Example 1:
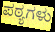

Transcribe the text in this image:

ಪಠ್ಯಗಳು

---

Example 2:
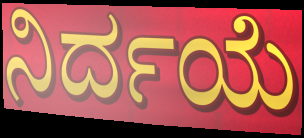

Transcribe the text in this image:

ನಿರ್ದಯೆ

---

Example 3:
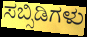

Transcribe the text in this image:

ಸಬ್ಸಿಡಿಗಳು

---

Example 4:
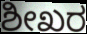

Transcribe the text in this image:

ಶೀಖರ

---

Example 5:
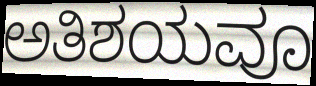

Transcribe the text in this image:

ಅತಿಶಯವೂ